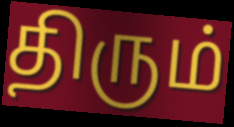
திரும்